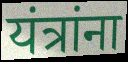
यंत्रांना